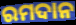
ରମଦାନ